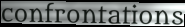
confrontations